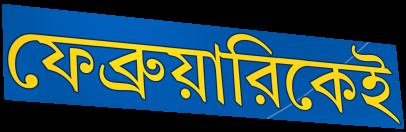
ফেব্রুয়ারিকেই